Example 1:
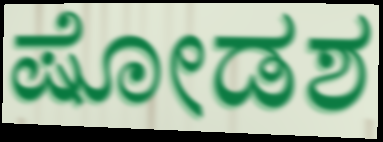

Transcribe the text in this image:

ಷೋಡಶ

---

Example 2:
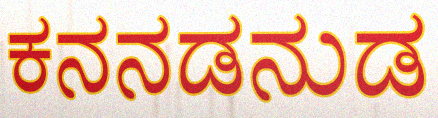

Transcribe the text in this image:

ಕನನಡನುಡ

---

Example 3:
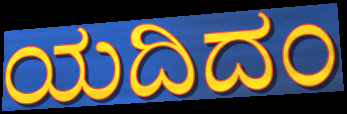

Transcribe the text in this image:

ಯದಿದಂ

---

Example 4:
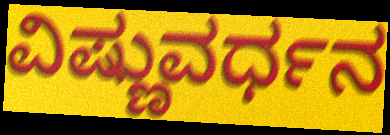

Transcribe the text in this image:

ವಿಷ್ಣುವರ್ಧನ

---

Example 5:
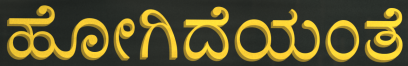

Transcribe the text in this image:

ಹೋಗಿದೆಯಂತೆ